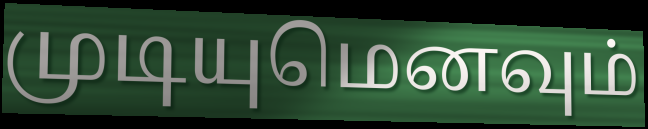
முடியுமெனவும்